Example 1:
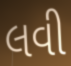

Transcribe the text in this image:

લવી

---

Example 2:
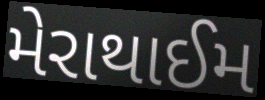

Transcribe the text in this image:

મેરાથાઈમ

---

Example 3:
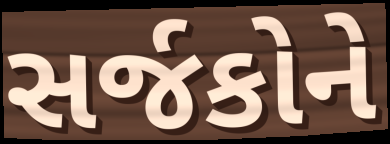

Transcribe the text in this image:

સર્જકોને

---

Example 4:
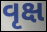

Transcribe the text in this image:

વૃક્ષ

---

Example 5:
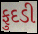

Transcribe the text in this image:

ફુદડી